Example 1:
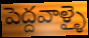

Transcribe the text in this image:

పెద్దవాళ్ళై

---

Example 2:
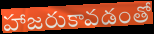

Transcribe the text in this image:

హాజరుకావడంతో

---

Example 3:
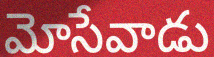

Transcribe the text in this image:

మోసేవాడు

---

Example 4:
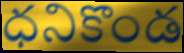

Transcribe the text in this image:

ధనికొండ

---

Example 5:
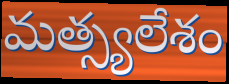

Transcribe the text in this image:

మత్స్యలేశం